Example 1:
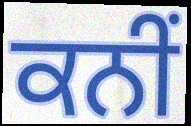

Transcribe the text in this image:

ਕਨੀਂ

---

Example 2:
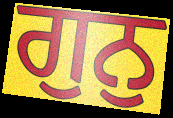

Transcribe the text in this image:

ਗੁਨੁ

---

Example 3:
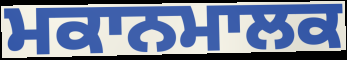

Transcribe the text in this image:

ਮਕਾਨਮਾਲਕ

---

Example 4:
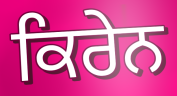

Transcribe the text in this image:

ਕਿਰੇਨ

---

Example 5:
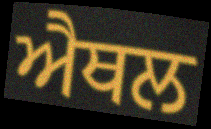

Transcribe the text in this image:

ਐਥਲ